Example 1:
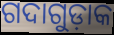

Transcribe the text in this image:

ଗଦାଗୁଡ଼ାକ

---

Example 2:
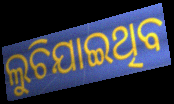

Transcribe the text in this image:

ଲୁଚିଯାଇଥିବ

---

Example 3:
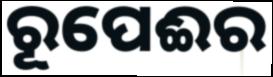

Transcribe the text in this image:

ରୂପେଈର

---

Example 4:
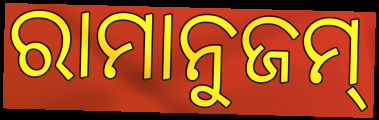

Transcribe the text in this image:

ରାମାନୁଜମ୍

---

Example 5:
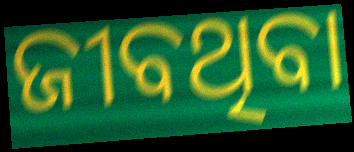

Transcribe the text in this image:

ଜୀବଥିବା